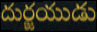
దుర్జయుడు